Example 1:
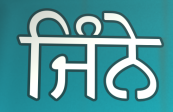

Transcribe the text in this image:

ਜਿੰਨੇ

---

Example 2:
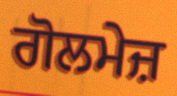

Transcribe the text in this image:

ਗੋਲਮੇਜ਼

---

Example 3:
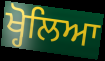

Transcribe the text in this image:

ਖ੍ਹੋਲਿਆ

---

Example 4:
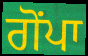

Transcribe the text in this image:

ਗੋਂਪਾ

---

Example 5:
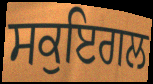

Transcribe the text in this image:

ਸਕੁਇਗਲ